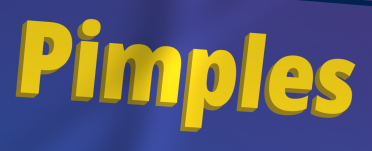
Pimples